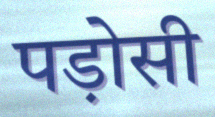
पड़ोसी